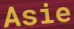
Asie